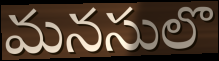
మనసులొ